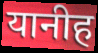
यानीह